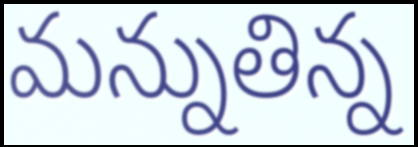
మన్నుతిన్న